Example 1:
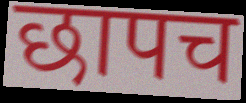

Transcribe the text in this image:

छापच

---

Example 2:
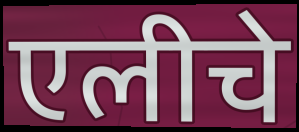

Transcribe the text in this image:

एलीचे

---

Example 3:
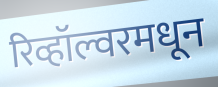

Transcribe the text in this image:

रिव्हॉल्वरमधून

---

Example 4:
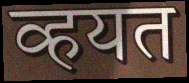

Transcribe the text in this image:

व्हयत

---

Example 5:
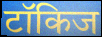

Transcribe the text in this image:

टॉकिज